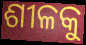
ଶୀଳକୁ